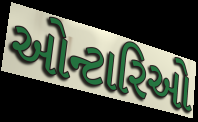
ઓન્ટારિઓ